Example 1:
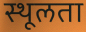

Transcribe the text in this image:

स्थूलता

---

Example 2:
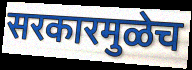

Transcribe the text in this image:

सरकारमुळेच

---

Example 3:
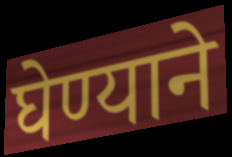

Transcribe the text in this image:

घेण्याने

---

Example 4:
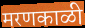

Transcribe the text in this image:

मरणकाळी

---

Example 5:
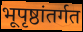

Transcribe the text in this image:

भूपृष्ठांतर्गत